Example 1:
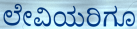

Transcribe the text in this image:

ಲೇವಿಯರಿಗೂ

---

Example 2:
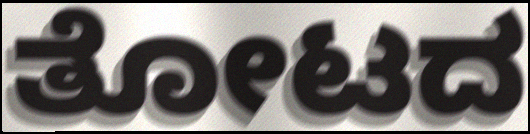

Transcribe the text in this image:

ತೋಟದ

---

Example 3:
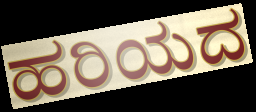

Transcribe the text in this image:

ಹರಿಯದ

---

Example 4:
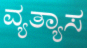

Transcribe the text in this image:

ವ್ಯತ್ಯಾಸ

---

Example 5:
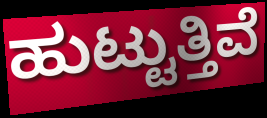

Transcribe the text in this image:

ಹುಟ್ಟುತ್ತಿವೆ